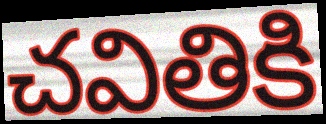
చవితికి